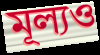
মূল্যও